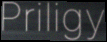
Priligy